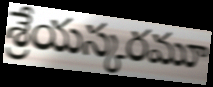
శ్రేయస్కరమూ